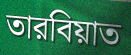
তারবিয়াত